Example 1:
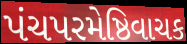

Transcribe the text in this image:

પંચપરમેષ્ઠિવાચક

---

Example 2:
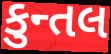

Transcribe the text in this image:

કુન્તલ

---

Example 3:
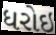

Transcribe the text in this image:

ધરોઇ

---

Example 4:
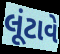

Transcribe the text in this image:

લૂંટાવે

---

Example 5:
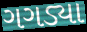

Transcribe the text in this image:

ગગડ્યા